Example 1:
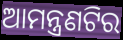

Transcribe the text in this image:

ଆମନ୍ତ୍ରଣଟିର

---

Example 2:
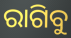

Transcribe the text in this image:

ରାଗିବୁ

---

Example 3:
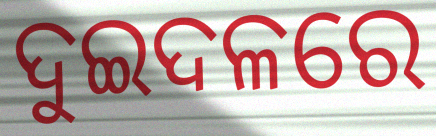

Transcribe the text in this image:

ଦୁଇଦଳରେ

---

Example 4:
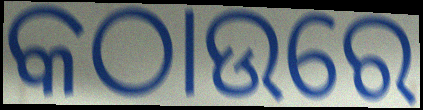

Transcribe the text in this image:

କଠାଉରେ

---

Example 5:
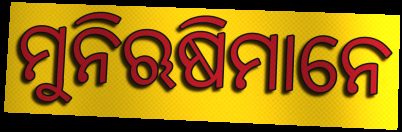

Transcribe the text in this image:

ମୁନିଋଷିମାନେ